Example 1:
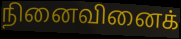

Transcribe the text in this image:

நினைவினைக்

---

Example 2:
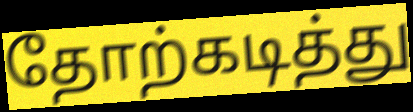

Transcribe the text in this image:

தோற்கடித்து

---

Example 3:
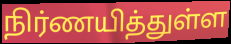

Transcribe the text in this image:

நிர்ணயித்துள்ள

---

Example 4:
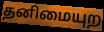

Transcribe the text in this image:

தனிமையுற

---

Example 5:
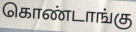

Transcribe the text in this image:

கொண்டாங்கு